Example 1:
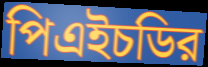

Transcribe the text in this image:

পিএইচডির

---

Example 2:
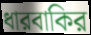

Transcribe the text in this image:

ধারবাকির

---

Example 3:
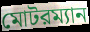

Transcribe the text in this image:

মোটরম্যান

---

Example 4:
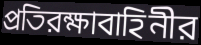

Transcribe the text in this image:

প্রতিরক্ষাবাহিনীর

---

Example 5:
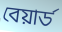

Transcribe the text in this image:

বেয়ার্ড